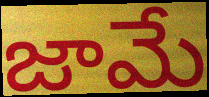
జామే